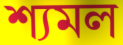
শ্যমল